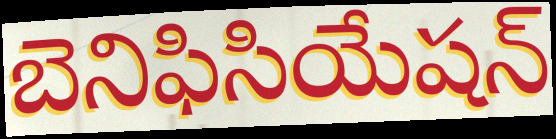
బెనిఫిసియేషన్